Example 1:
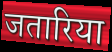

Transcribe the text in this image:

जतारिया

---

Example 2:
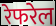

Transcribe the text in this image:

रेफरेल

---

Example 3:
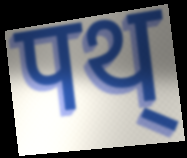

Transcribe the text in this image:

पथ्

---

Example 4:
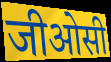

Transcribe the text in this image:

जीओसी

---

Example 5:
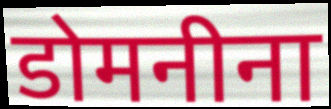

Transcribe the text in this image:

डोमनीना